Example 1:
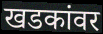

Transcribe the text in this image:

खडकांवर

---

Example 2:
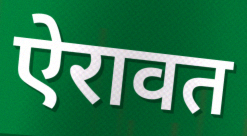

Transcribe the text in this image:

ऐरावत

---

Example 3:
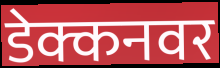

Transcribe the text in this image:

डेक्कनवर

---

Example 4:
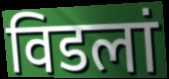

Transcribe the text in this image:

विडलां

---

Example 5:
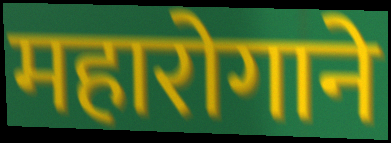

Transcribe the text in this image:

महारोगाने